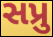
સપ્રુ